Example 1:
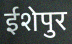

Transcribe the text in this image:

ईशेपुर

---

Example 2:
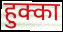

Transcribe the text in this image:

हुक्का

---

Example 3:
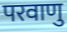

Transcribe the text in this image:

परवाणु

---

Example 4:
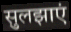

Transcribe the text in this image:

सुलझाएं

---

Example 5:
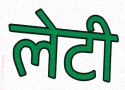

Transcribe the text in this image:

लेटी